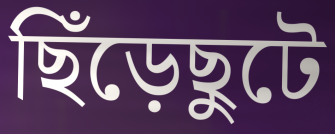
ছিঁড়েছুটে